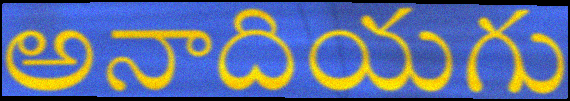
అనాదియగు